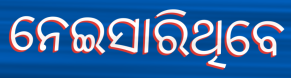
ନେଇସାରିଥିବେ